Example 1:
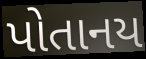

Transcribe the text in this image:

પોતાનય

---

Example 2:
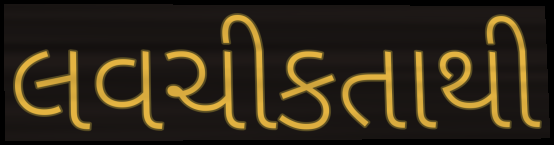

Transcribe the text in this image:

લવચીકતાથી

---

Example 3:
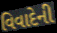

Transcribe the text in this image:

વિવાદેની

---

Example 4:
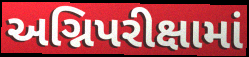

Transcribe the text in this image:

અગ્નિપરીક્ષામાં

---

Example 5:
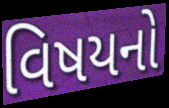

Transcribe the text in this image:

વિષયનો